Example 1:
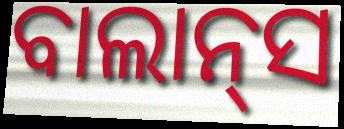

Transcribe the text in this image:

ବାଲାନ୍‌ସ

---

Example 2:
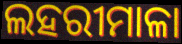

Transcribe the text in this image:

ଲହରୀମାଳା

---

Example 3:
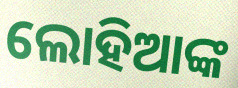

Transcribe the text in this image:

ଲୋହିଆଙ୍କ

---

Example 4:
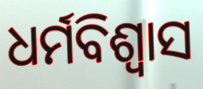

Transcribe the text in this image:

ଧର୍ମବିଶ୍ବାସ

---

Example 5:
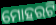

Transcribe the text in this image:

ମୋହରଟି